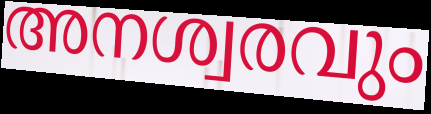
അനശ്വരവും